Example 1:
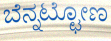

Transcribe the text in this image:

ಬೆನ್ನಟ್ಟೋಣ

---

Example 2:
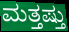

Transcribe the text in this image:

ಮತ್ತಷ್ತು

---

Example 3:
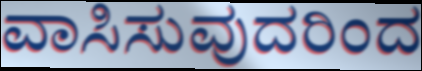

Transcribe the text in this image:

ವಾಸಿಸುವುದರಿಂದ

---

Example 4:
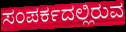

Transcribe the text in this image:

ಸಂಪರ್ಕದಲ್ಲಿರುವ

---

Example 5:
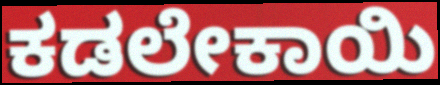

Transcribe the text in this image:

ಕಡಲೇಕಾಯಿ